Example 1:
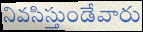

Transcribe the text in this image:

నివసిస్తుండేవారు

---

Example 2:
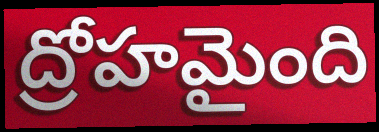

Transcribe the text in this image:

ద్రోహమైంది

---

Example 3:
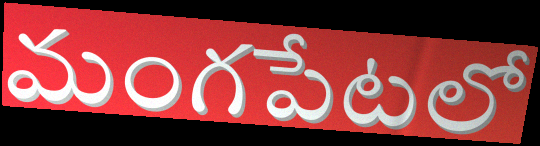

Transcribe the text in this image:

మంగపేటలో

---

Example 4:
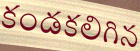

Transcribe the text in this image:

కండకలిగిన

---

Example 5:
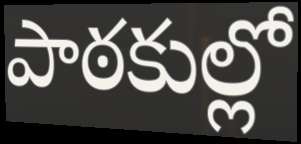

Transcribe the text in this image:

పాఠకుల్లో